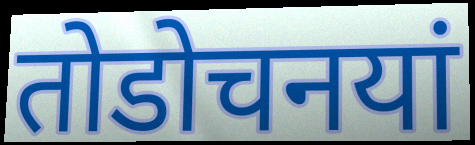
तोडोचनयां